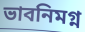
ভাবনিমগ্ন